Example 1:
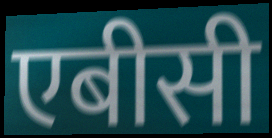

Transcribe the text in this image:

एबीसी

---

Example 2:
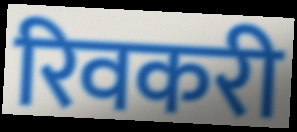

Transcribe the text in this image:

रिवकरी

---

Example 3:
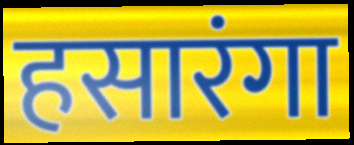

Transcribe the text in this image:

हसारंगा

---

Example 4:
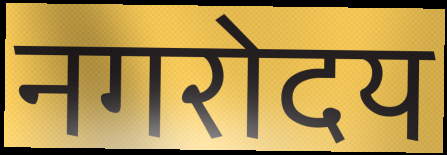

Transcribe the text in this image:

नगरोदय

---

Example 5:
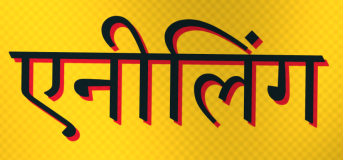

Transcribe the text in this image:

एनीलिंग